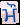
ਮੌ